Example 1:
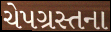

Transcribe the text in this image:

ચેપગ્રસ્તના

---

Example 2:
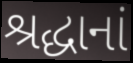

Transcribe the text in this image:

શ્રદ્ધાનાં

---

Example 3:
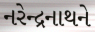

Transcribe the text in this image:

નરેન્દ્રનાથને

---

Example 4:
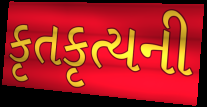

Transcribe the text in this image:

કૃતકૃત્યની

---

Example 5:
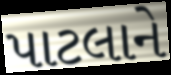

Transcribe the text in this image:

પાટલાને